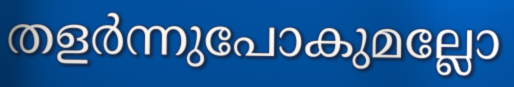
തളർന്നുപോകുമല്ലോ